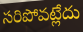
సరిపోవట్లేదు